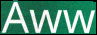
Aww